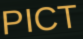
PICT